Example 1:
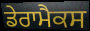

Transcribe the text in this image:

ਡੇਰਾਮੈਕਸ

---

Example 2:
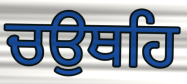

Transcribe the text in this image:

ਚਉਥਹਿ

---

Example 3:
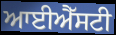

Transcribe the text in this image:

ਆਈਐੱਸਟੀ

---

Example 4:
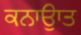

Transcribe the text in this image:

ਕਨਾਉਾਤ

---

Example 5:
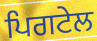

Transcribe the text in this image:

ਪਿਗਟੇਲ